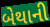
બેથાની